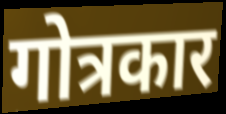
गोत्रकार